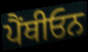
ਪੈਂਥੀਓਨ